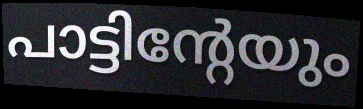
പാട്ടിന്റേയും